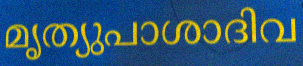
മൃത്യുപാശാദിവ